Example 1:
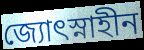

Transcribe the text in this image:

জ্যোৎস্নাহীন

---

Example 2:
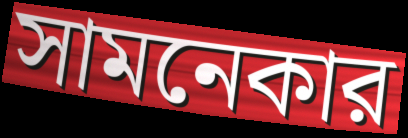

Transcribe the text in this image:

সামনেকার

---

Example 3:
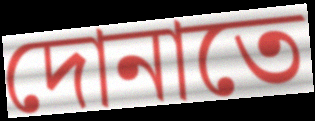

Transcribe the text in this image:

দোনাতে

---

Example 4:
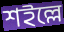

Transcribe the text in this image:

শইল্লে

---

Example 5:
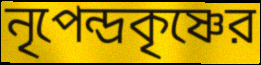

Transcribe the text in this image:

নৃপেন্দ্রকৃষ্ণের